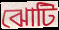
ঝোটি